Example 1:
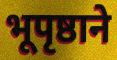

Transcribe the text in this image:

भूपृष्ठाने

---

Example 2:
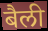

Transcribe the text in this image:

बैली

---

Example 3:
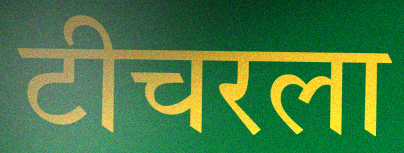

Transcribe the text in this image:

टीचरला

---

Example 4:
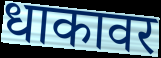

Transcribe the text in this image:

धाकावर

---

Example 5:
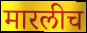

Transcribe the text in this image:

मारलीच